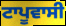
ਟਾਪੂਵਾਸੀ